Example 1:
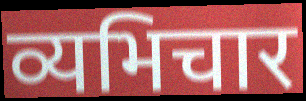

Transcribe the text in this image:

व्यभिचार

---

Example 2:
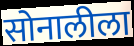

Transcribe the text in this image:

सोनालीला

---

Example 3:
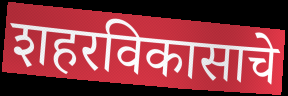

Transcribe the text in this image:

शहरविकासाचे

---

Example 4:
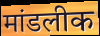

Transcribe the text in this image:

मांडलीक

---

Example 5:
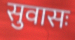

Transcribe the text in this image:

सुवासः